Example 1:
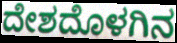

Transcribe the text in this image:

ದೇಶದೊಳಗಿನ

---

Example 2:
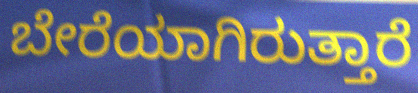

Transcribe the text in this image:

ಬೇರೆಯಾಗಿರುತ್ತಾರೆ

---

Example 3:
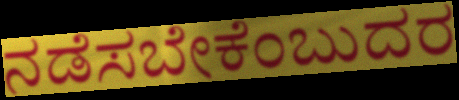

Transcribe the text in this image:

ನಡೆಸಬೇಕೆಂಬುದರ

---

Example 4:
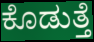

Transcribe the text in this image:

ಕೊಡುತ್ತೆ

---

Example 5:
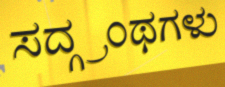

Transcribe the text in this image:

ಸದ್ಗ್ರಂಥಗಳು